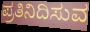
ಪ್ರತಿನಿದಿಸುವ